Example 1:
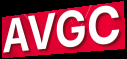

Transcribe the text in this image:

AVGC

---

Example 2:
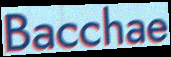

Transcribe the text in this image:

Bacchae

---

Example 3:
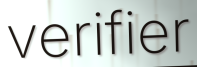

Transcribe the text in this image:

verifier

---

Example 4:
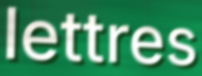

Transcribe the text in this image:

lettres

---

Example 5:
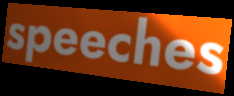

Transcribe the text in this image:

speeches